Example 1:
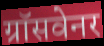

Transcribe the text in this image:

ग्रॉसवेनर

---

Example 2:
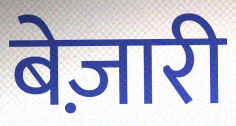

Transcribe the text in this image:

बेज़ारी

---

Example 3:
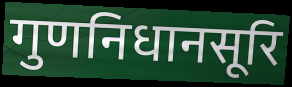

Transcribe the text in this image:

गुणनिधानसूरि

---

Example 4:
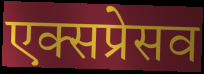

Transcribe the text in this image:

एक्सप्रेसव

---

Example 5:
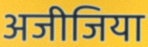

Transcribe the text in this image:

अजीजिया